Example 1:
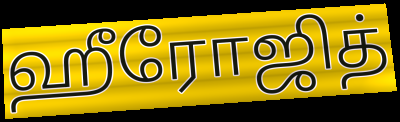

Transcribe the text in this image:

ஹீரோஜித்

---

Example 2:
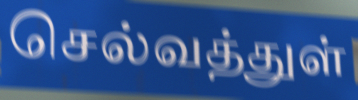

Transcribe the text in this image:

செல்வத்துள்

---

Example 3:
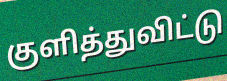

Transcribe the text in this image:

குளித்துவிட்டு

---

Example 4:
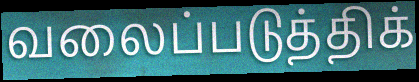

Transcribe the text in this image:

வலைப்படுத்திக்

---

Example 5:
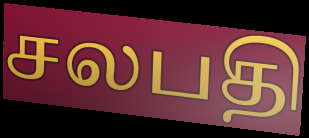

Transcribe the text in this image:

சலபதி